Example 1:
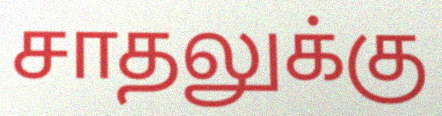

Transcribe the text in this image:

சாதலுக்கு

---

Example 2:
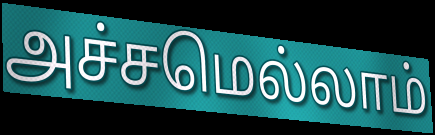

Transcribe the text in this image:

அச்சமெல்லாம்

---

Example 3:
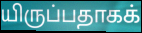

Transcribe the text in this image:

யிருப்பதாகக்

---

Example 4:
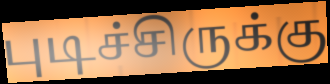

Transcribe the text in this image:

புடிச்சிருக்கு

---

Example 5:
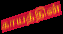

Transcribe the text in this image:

காயத்தின்